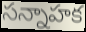
సన్నాహక